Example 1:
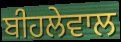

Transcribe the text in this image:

ਬੀਹਲੇਵਾਲ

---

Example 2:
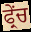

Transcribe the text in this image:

ਫ੍ਰੇੰਚ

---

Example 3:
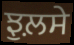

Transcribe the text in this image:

ਝੁਲ਼ਸੇ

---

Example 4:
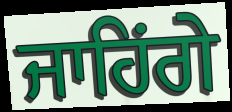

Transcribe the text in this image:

ਜਾਹਿਂਗੇ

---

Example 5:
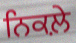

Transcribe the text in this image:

ਨਿਕਲ਼ੇ